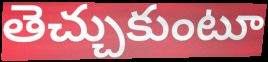
తెచ్చుకుంటూ